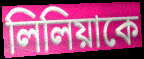
লিলিয়াকে